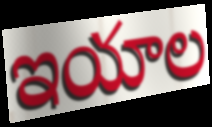
ఇయాల